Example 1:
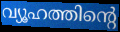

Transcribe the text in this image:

വ്യൂഹത്തിന്റെ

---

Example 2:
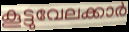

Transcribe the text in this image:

കൂട്ടുവേലക്കാർ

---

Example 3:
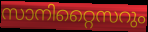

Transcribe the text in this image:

സാനിറ്റൈസറും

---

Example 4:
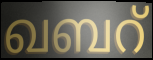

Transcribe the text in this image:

ഖബറ്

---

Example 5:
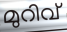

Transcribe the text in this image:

മുറിവ്